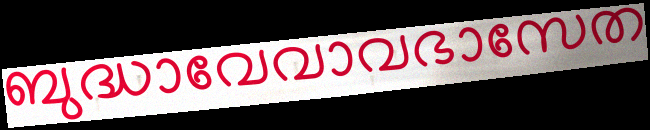
ബുദ്ധാവേവാവഭാസേത